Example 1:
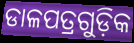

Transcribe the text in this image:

ଡାଳପତ୍ରଗୁଡ଼ିକ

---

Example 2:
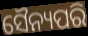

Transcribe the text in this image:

ସୈନ୍ୟପରି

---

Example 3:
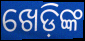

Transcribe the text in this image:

ଖେଡ଼ିଙ୍କ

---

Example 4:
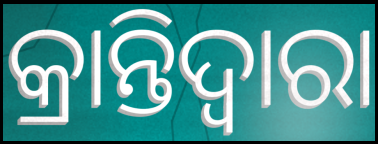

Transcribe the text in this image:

କ୍ରାନ୍ତିଦ୍ୱାରା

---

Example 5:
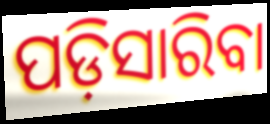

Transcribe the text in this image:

ପଡ଼ିସାରିବା